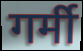
गर्मी